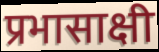
प्रभासाक्षी